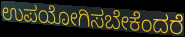
ಉಪಯೋಗಿಸಬೇಕೆಂದರೆ